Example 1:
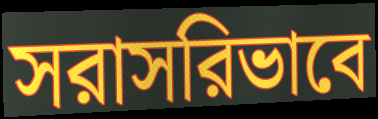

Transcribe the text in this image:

সরাসরিভাবে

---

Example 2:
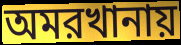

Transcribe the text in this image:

অমরখানায়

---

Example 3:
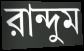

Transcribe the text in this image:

রান্দুম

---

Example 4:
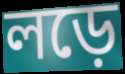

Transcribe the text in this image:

লড়ে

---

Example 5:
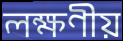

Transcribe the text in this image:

লক্ষণীয়